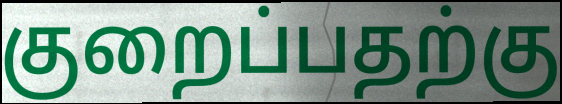
குறைப்பதற்கு